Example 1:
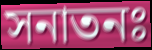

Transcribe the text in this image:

সনাতনঃ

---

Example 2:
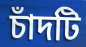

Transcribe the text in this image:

চাঁদটি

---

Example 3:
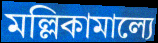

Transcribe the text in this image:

মল্লিকামাল্যে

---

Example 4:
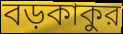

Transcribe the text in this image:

বড়কাকুর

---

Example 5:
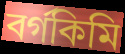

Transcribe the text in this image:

বর্গকিমি